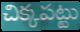
చిక్కపట్టు